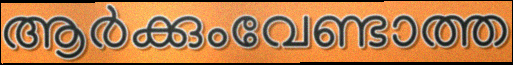
ആർക്കുംവേണ്ടാത്ത